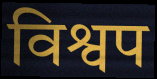
विश्वप